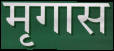
मृगास